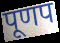
पूणप